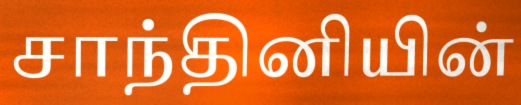
சாந்தினியின்